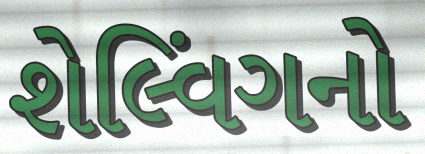
શેલ્વિંગનો